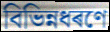
বিভিন্নধৰণে